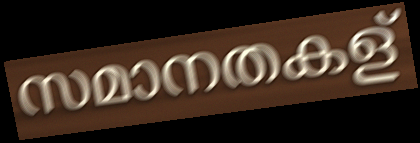
സമാനതകള്